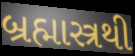
બ્રહ્માસ્ત્રથી